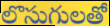
లొసుగులతో